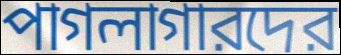
পাগলাগারদের